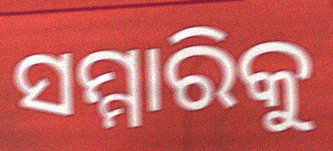
ସମ୍ମାରିକୁ